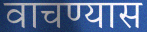
वाचण्यास